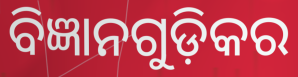
ବିଜ୍ଞାନଗୁଡ଼ିକର